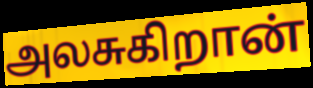
அலசுகிறான்